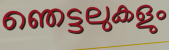
ഞെട്ടലുകളും